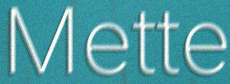
Mette